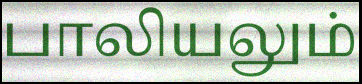
பாலியலும்